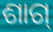
ଶାଗ୍